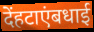
देंहटाएंबधाई